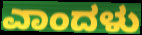
ಎಾಂದಳು